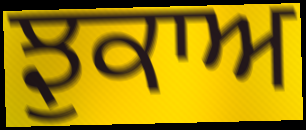
ਝੁਕਾਅ